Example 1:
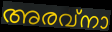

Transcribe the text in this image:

അരവ്നാ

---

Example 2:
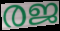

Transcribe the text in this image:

രജ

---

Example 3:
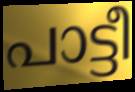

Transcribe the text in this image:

പാട്ടീ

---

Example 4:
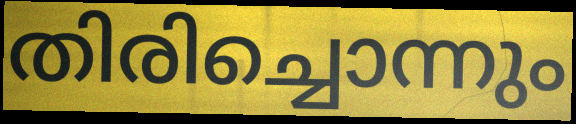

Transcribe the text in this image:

തിരിച്ചൊന്നും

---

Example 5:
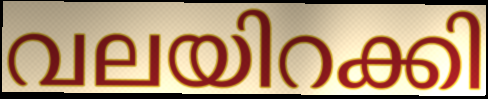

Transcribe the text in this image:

വലയിറക്കി